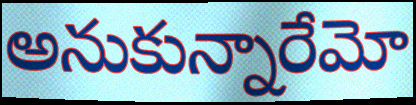
అనుకున్నారేమో